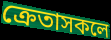
ক্ৰেতাসকলে